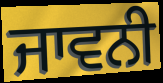
ਜਾਵਨੀ